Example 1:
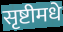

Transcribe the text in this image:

सृष्टीमधे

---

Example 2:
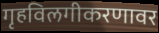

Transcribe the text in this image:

गृहविलगीकरणावर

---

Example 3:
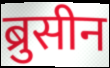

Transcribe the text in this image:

ब्रुसीन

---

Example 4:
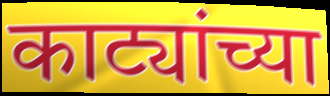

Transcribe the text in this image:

काट्यांच्या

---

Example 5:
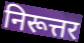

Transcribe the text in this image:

निरूत्तर